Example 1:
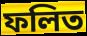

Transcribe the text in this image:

ফলিত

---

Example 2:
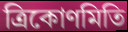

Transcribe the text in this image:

ত্ৰিকোণমিতি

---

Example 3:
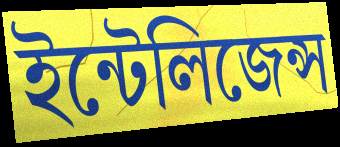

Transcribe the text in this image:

ইন্টেলিজেন্স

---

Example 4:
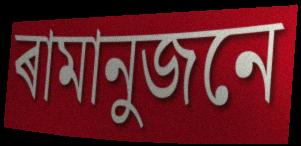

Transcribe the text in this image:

ৰামানুজনে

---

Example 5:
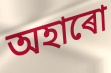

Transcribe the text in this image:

অহাৰো